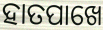
ହାତପାଖେ